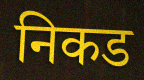
निकड